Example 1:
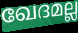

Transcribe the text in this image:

ഖേദമല്ല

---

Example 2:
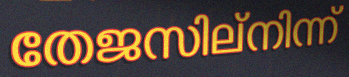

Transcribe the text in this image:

തേജസില്നിന്ന്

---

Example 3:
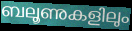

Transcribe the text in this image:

ബലൂണുകളിലും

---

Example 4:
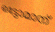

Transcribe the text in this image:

ഒട്ടോമാന്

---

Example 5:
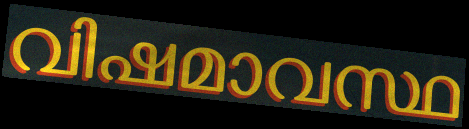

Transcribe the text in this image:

വിഷമാവസ്ഥ